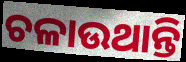
ଚଳାଉଥାନ୍ତି